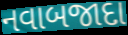
નવાબજાદા